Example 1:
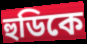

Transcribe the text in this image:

হুডিকে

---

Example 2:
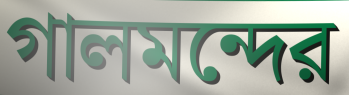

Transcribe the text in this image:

গালমন্দের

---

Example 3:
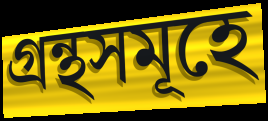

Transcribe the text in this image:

গ্রন্থসমূহে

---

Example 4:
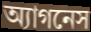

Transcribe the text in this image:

অ্যাগনেস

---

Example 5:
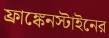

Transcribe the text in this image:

ফ্রাঙ্কেনস্টাইনের